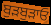
ਬੁੜਬੁੜਾਓ